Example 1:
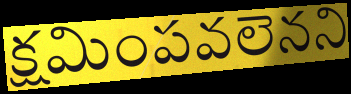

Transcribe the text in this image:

క్షమింపవలెనని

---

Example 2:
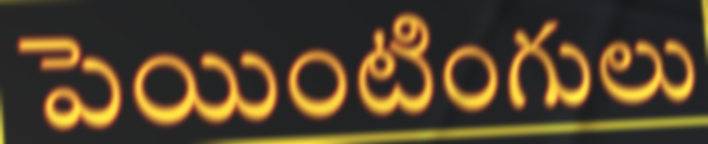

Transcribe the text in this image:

పెయింటింగులు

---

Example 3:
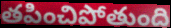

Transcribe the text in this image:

తపించిపోతుంది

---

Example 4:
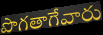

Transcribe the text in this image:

పొగతాగేవారు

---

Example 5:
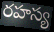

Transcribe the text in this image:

రహస్య